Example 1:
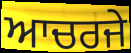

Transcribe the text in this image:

ਆਚਰਜੇ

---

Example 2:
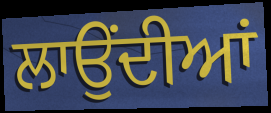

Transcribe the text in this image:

ਲਾਉਂਦੀਆਂ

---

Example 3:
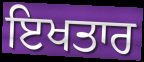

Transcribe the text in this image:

ਇਖਤਾਰ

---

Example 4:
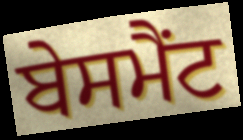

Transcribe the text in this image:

ਬੇਸਮੈਂਟ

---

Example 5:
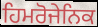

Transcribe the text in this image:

ਹਿਮਰੋਜੇਨਿਕ